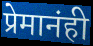
प्रेमानंही